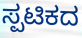
ಸ್ಪಟಿಕದ